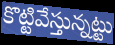
కొట్టివేస్తున్నట్టు